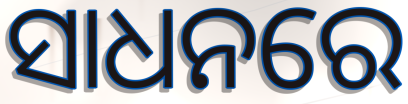
ସାଧନରେ